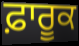
ਫ਼ਾਰੂਕ